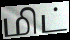
மிட்